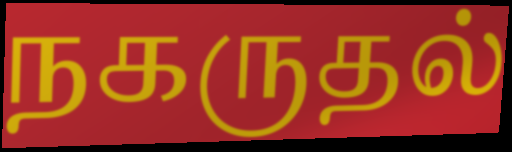
நகருதல்